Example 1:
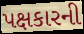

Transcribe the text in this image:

પક્ષકારની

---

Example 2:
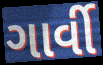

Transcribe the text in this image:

ગાર્વી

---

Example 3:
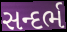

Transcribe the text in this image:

સન્દર્ભ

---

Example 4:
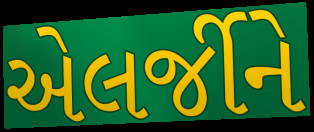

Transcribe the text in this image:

એલર્જીને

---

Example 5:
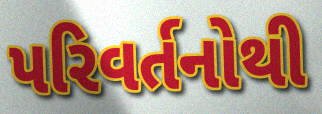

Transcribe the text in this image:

પરિવર્તનોથી